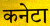
कनेटा